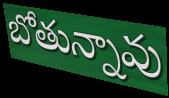
బోతున్నావు